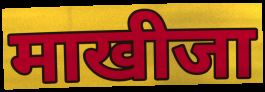
माखीजा